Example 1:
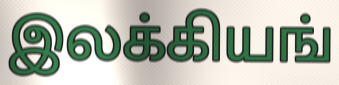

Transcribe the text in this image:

இலக்கியங்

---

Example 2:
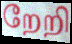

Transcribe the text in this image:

றேறி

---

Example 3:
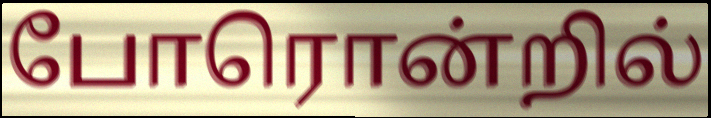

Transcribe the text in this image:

போரொன்றில்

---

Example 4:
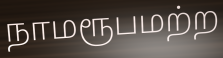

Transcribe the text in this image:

நாமரூபமற்ற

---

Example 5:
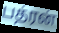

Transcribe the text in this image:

பத்ரன்